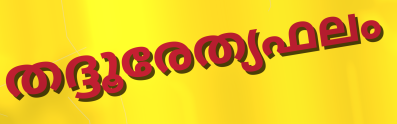
തദ്ദൂരേത്യഫലം